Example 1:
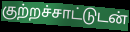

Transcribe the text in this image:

குற்றச்சாட்டுடன்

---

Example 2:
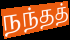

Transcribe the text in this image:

நந்தத்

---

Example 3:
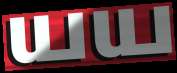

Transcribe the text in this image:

யய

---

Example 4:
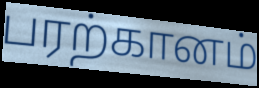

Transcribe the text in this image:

பரற்கானம்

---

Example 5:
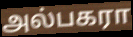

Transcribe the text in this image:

அல்பகரா